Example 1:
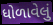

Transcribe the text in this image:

ધોળાવેલું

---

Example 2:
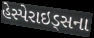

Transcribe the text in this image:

હેસ્પેરાઇડ્સના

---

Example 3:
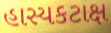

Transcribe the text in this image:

હાસ્યકટાક્ષ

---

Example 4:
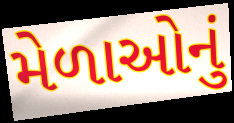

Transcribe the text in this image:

મેળાઓનું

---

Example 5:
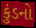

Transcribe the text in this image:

કુંડનો